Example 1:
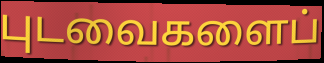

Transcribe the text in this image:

புடவைகளைப்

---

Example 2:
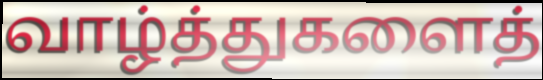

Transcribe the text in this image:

வாழ்த்துகளைத்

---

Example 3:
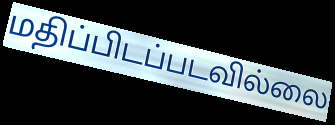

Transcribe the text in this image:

மதிப்பிடப்படவில்லை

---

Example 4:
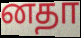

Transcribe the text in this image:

னதா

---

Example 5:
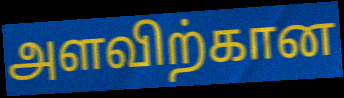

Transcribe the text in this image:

அளவிற்கான